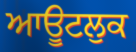
ਆਊਟਲੁਕ